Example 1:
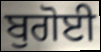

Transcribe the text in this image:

ਬੁਗੋਈ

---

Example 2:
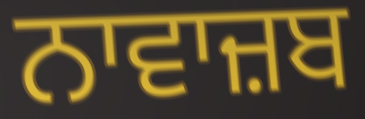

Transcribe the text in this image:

ਨਾਵਾਜ਼ਬ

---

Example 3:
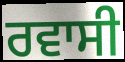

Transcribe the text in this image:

ਰਵਾਸੀ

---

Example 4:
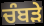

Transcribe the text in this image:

ਚੰਬੜੇ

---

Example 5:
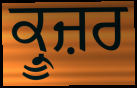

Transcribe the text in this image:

ਕ੍ਰੂਜ਼ਰ